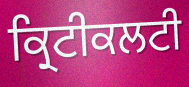
ਕ੍ਰਿਟੀਕਲਟੀ